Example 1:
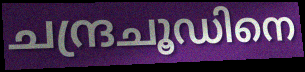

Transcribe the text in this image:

ചന്ദ്രചൂഡിനെ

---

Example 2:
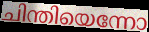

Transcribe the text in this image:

ചിന്തിയെന്നോ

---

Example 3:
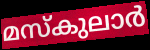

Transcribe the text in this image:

മസ്കുലാർ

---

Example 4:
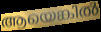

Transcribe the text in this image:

ആയെങ്കിൽ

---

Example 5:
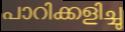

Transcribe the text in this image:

പാറിക്കളിച്ചു